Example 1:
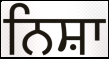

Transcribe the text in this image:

ਨਿਸ਼ਾ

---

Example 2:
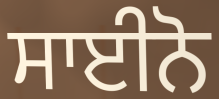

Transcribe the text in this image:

ਸਾਈਨੋ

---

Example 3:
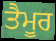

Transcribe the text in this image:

ਤੈਮੂਰ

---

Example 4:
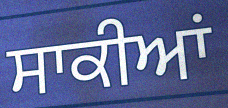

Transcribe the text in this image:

ਸਾਕੀਆਂ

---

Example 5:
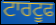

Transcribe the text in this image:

ਟਾਰਟੂਫ